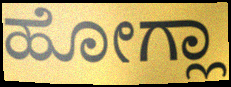
ಹೋಗ್ಲಾ